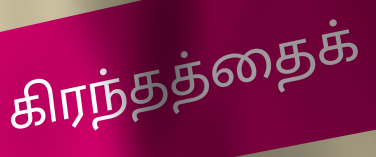
கிரந்தத்தைக்